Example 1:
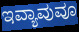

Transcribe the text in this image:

ಇವ್ಯಾವುವೂ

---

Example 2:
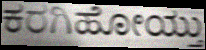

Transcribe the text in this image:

ಕರಗಿಹೋಯ್ತು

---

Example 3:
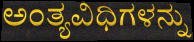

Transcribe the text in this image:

ಅಂತ್ಯವಿಧಿಗಳನ್ನು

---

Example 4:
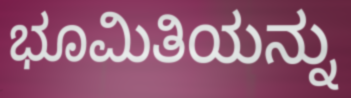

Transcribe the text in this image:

ಭೂಮಿತಿಯನ್ನು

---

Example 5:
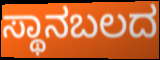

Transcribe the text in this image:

ಸ್ಥಾನಬಲದ